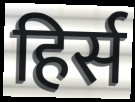
हिर्स